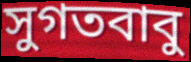
সুগতবাবু